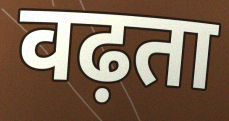
वढ़ता